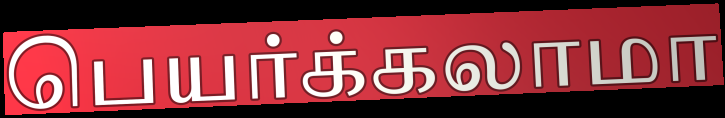
பெயர்க்கலாமா